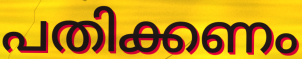
പതിക്കണം